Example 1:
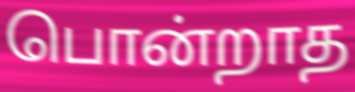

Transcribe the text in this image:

பொன்றாத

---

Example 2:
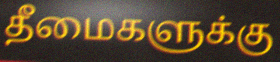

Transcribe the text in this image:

தீமைகளுக்கு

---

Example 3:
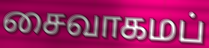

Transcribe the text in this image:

சைவாகமப்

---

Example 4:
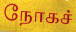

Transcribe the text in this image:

நோகச்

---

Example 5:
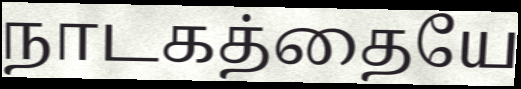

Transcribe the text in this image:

நாடகத்தையே